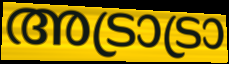
അട്രാട്രാ